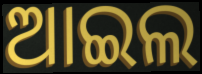
ଆଇଲ